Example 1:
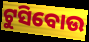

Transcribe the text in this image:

ଟୁସିବୋଉ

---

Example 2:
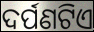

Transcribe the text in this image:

ଦର୍ପଣଟିଏ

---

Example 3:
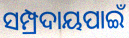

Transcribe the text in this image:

ସମ୍ପ୍ରଦାୟପାଇଁ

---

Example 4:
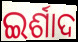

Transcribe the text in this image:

ଇର୍ଶାଦ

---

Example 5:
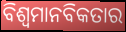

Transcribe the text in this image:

ବିଶ୍ଵମାନବିକତାର